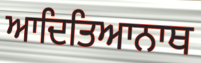
ਆਦਿਤਿਆਨਾਥ